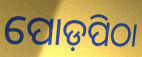
ପୋଡ଼ପିଠା